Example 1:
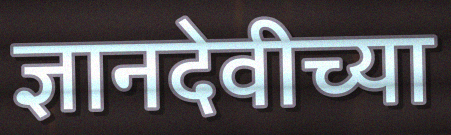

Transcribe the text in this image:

ज्ञानदेवीच्या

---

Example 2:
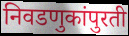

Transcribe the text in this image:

निवडणुकांपुरती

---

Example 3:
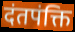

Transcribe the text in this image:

दंतपंक्ति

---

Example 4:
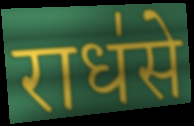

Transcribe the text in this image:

राध॑से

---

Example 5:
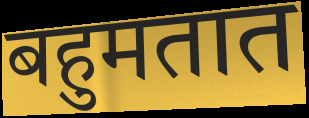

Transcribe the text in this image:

बहुमतात